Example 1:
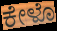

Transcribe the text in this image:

ಕೇಳೊ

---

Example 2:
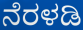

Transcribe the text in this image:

ನೆರಳಡಿ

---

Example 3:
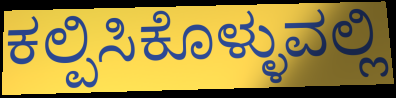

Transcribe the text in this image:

ಕಲ್ಪಿಸಿಕೊಳ್ಳುವಲ್ಲಿ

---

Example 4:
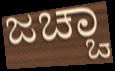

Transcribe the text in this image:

ಜಚ್ಚಾ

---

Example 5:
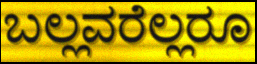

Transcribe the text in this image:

ಬಲ್ಲವರೆಲ್ಲರೂ